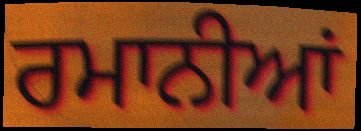
ਰਮਾਨੀਆਂ